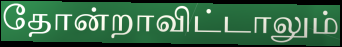
தோன்றாவிட்டாலும்